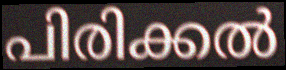
പിരിക്കൽ